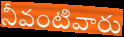
నీవంటివారు